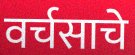
वर्चसाचे